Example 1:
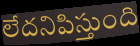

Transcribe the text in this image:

లేదనిపిస్తుంది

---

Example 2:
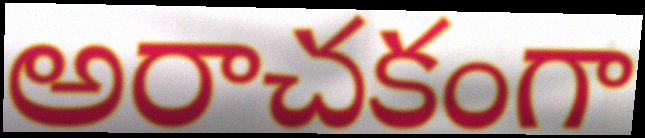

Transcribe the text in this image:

అరాచకంగా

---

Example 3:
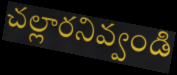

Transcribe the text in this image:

చల్లారనివ్వండి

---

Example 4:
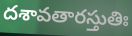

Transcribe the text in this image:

దశావతారస్తుతిః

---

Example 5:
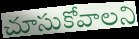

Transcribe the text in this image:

చూసుకోవాలని